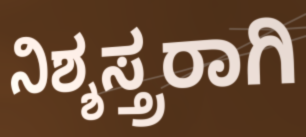
ನಿಶ್ಶಸ್ತ್ರರಾಗಿ